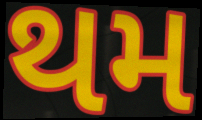
થમ